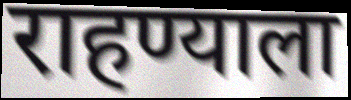
राहण्याला